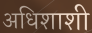
अधिशाशी